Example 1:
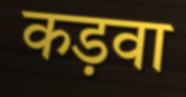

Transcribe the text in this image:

कड़वा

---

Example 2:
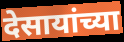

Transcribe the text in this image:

देसायांच्या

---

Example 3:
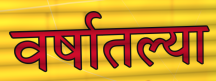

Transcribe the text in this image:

वर्षातल्या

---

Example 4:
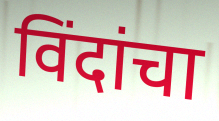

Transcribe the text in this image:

विंदांचा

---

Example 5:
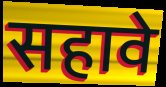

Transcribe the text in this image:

सहावे